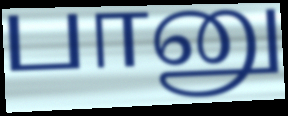
பானு